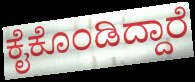
ಕೈಕೊಂಡಿದ್ದಾರೆ